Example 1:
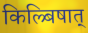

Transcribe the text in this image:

किल्बिषात्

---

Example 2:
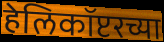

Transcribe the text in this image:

हेलिकॉप्टरच्या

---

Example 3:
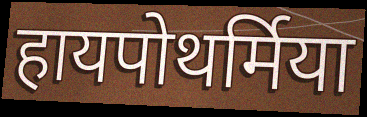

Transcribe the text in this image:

हायपोथर्मिया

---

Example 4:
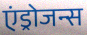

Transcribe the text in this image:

एंड्रोजन्स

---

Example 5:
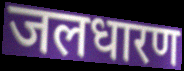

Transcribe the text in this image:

जलधारण